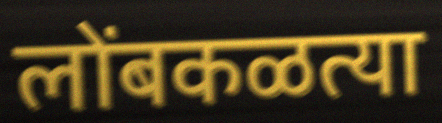
लोंबकळत्या